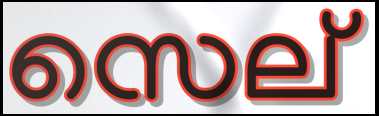
സെല്